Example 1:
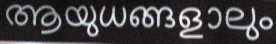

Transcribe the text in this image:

ആയുധങ്ങളാലും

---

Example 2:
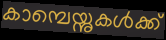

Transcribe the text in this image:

കാമ്പെയ്നുകൾക്ക്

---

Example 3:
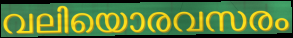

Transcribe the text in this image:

വലിയൊരവസരം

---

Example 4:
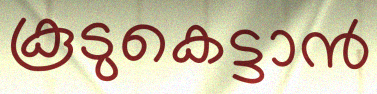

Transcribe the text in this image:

കൂടുകെട്ടാൻ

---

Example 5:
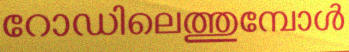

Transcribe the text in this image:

റോഡിലെത്തുമ്പോൾ